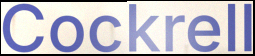
Cockrell